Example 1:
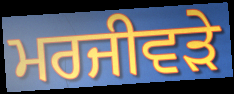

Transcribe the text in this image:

ਮਰਜੀਵੜੇ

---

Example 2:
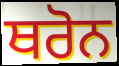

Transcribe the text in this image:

ਥਰੋਨ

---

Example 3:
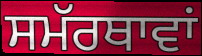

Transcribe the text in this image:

ਸਮੱਰਥਾਵਾਂ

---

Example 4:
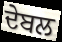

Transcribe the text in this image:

ਦੇਬਲ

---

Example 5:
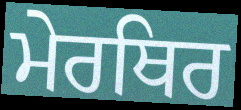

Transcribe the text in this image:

ਮੇਰਥਿਰ